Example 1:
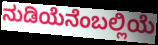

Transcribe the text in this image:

ನುಡಿಯೆನೆಂಬಲ್ಲಿಯೆ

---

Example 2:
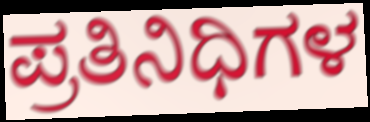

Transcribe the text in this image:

ಪ್ರತಿನಿಧಿಗಳ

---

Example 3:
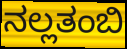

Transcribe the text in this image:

ನಲ್ಲತಂಬಿ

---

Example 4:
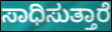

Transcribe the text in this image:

ಸಾಧಿಸುತ್ತಾರೆ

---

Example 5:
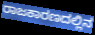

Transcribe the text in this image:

ರಾಜಕಾರಣದಲ್ಲಿನ